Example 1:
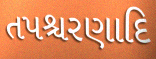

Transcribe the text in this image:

તપશ્ચરણાદિ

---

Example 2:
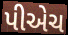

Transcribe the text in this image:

પીએચ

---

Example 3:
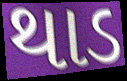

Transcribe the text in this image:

થાડ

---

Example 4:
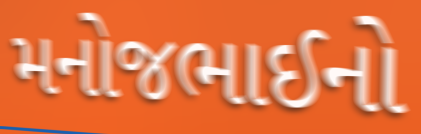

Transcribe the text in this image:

મનોજભાઈનો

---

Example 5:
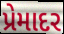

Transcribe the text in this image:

પ્રેમાદર